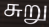
சுறு